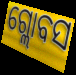
ଗ୍ଲୋବସ